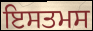
ਇਸਤਮਸ